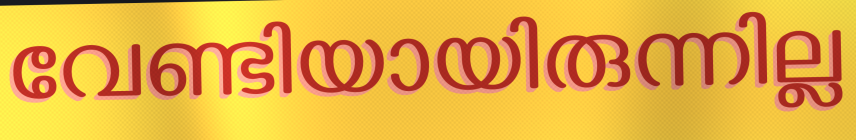
വേണ്ടിയായിരുന്നില്ല